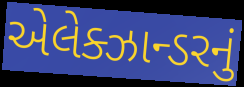
એલેક્ઝાન્ડરનું